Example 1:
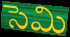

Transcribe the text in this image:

సెమి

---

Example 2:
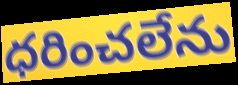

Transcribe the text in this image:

ధరించలేను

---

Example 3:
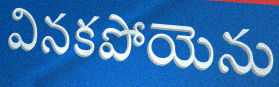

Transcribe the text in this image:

వినకపోయెను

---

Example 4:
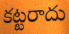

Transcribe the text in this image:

కట్టరాదు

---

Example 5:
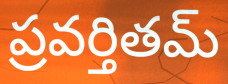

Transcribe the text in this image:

ప్రవర్తితమ్